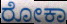
ರೋಕಾ